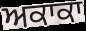
ਅਕਾਕਾ